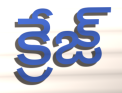
క్రేజ్